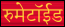
रुमेटॉईड